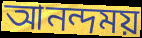
আনন্দময়